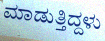
ಮಾಡುತ್ತಿದ್ದಳು